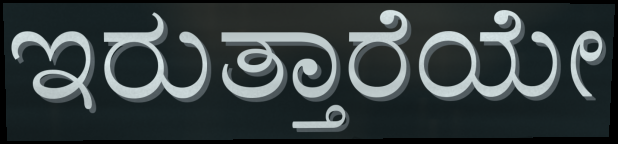
ಇರುತ್ತಾರೆಯೇ